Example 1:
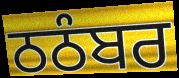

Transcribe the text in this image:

ਠਠੰਬਰ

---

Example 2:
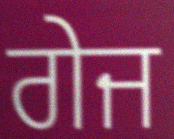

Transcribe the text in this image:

ਗੇਜ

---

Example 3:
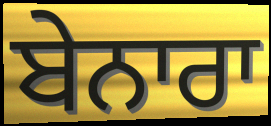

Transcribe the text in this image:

ਬੇਨਾਰਾ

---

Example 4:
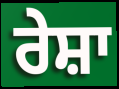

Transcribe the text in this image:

ਰੇਸ਼ਾ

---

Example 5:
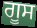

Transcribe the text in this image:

ਗੂਸ